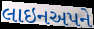
લાઇનઅપને